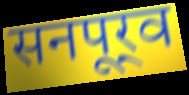
सनपूर्व